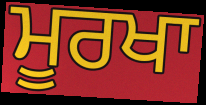
ਮੂਰਖਾ